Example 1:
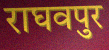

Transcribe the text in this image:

राघवपुर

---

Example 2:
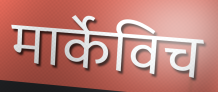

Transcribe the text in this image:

मार्केविच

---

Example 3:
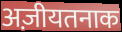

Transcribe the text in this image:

अज़ीयतनाक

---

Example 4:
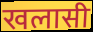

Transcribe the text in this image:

खलासी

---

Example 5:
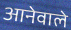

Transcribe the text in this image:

आनेवाले